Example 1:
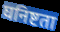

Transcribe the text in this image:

घनिष्टता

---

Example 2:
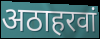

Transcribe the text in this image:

अठाहरवां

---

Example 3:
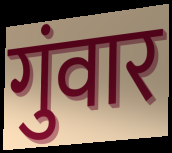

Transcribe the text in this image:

गुंवार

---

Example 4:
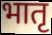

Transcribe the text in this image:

भातृ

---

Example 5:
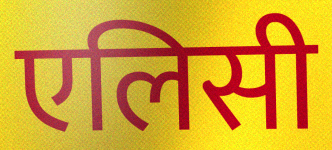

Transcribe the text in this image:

एलिसी